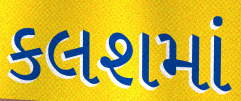
કલશમાં